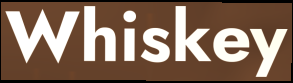
Whiskey